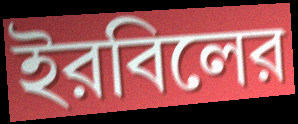
ইরবিলের